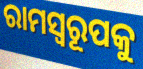
ରାମସ୍ୱରୂପକୁ